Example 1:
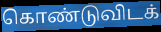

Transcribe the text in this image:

கொண்டுவிடக்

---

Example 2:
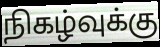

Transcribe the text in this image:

நிகழ்வுக்கு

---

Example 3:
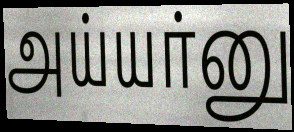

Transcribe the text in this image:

அய்யர்னு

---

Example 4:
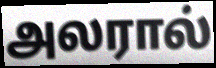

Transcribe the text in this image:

அலரால்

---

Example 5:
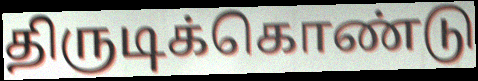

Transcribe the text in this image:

திருடிக்கொண்டு